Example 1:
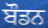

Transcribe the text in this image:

ਬੌਡਨ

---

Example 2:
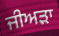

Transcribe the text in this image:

ਜੀਅੜਾ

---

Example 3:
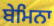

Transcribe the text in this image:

ਬੇਮਿਨਾ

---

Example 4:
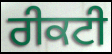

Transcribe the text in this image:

ਰੀਕਟੀ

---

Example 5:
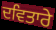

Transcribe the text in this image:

ਦਵਿਤਾਰੇ